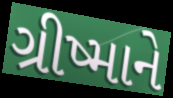
ગ્રીષ્માને